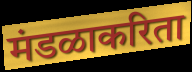
मंडळाकरिता